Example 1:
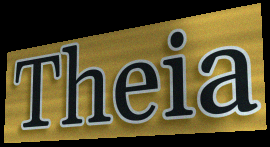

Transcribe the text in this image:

Theia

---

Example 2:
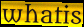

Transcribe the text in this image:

whatis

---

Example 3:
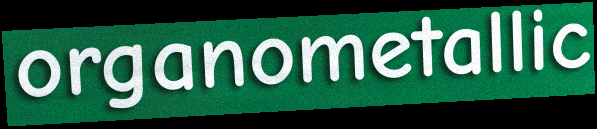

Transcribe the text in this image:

organometallic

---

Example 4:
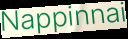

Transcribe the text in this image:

Nappinnai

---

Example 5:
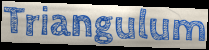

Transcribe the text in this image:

Triangulum